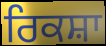
ਰਿਕਸ਼ਾ